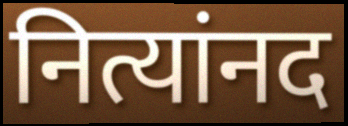
नित्यांनद